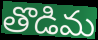
తొడిమ